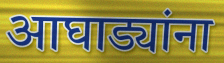
आघाड्यांना